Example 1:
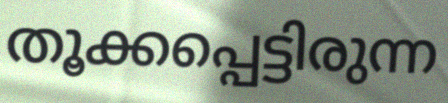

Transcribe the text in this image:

തൂക്കപ്പെട്ടിരുന്ന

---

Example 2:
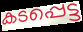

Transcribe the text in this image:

കടപ്പെട്ട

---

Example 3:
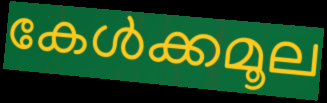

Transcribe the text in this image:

കേൾക്കമൂല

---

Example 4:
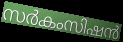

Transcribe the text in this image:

സർകംസിഷൻ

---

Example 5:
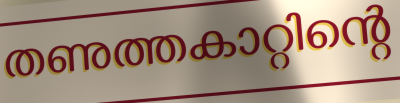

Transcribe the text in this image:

തണുത്തകാറ്റിന്റെ